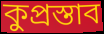
কুপ্রস্তাব